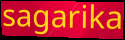
sagarika